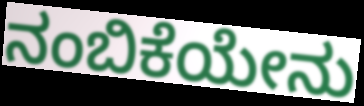
ನಂಬಿಕೆಯೇನು